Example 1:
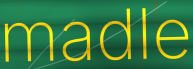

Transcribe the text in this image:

madle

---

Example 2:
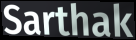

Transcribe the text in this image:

Sarthak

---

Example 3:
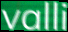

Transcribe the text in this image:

valli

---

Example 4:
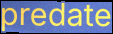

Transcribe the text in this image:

predate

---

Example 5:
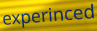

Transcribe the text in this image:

experinced